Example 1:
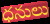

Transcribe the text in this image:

ధనులు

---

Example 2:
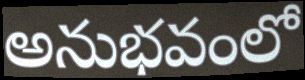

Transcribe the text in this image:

అనుభవంలో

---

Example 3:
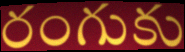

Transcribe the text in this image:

రంగుకు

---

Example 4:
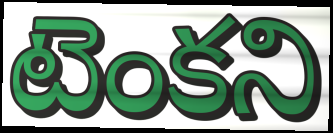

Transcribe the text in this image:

టెంకని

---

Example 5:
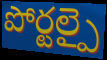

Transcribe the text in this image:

పోర్టల్పై